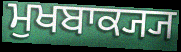
ਮੁਖਬਾਕ੍ਯ੍ਯ